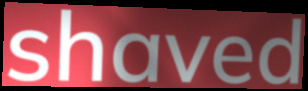
shaved